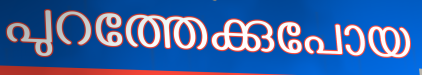
പുറത്തേക്കുപോയ